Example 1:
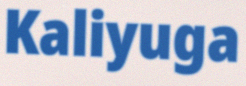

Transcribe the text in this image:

Kaliyuga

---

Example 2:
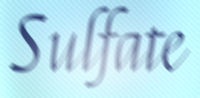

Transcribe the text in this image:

Sulfate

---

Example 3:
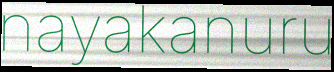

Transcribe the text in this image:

nayakanuru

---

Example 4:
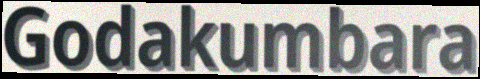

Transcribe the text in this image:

Godakumbara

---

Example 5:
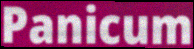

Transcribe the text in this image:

Panicum